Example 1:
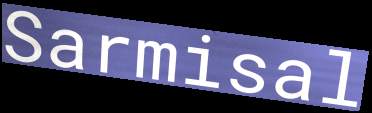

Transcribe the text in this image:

Sarmisal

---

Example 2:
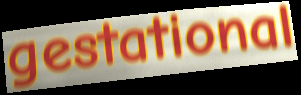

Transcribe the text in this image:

gestational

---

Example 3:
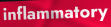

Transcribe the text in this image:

inflammatory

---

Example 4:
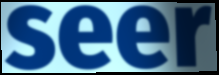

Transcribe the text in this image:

seer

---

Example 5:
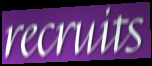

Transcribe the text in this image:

recruits